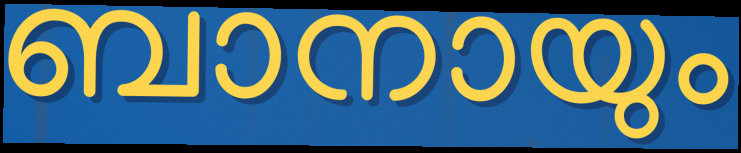
ബാനായും